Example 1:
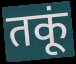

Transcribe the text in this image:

तकूं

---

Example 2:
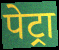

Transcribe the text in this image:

पेट्रा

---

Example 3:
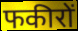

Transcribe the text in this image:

फकीरों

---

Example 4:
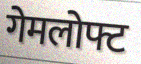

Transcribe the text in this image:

गेमलोफ्ट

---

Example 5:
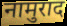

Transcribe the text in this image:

नामुराद